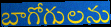
బాగోగులను